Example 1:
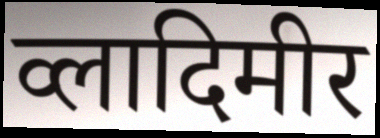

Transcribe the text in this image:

व्लादिमीर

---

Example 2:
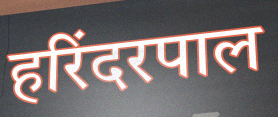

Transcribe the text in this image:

हरिंदरपाल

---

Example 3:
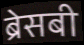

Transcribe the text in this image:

ब्रेसबी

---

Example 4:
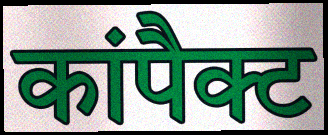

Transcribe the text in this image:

कांपैक्ट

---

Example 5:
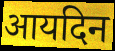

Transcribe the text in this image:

आयदिन